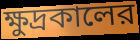
ক্ষুদ্রকালের